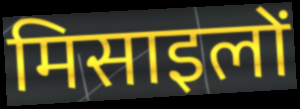
मिसाइलों